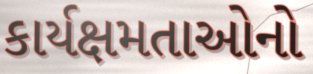
કાર્યક્ષમતાઓનો